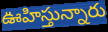
ఊహిస్తున్నారు